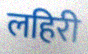
लहिरी